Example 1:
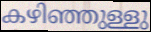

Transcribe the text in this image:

കഴിഞ്ഞുള്ളു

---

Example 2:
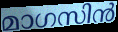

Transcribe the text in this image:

മാഗസിൻ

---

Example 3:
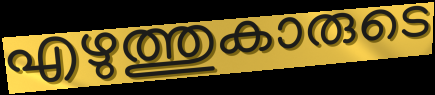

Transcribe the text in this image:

എഴുത്തുകാരുടെ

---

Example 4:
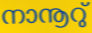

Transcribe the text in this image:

നാനൂറു്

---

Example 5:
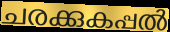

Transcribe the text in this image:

ചരക്കുകപ്പൽ